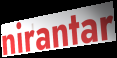
nirantar